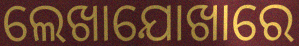
ଲେଖାଯୋଖାରେ